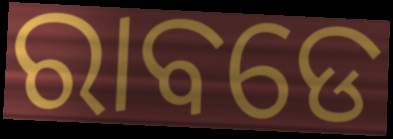
ରାବଡେ